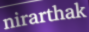
nirarthak